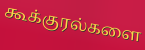
கூக்குரல்களை